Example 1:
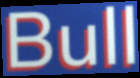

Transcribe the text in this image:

Bull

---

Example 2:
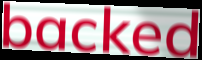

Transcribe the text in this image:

backed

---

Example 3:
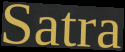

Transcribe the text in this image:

Satra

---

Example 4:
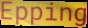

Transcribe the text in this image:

Epping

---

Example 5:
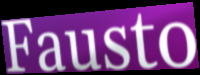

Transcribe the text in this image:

Fausto